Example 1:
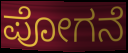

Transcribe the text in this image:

ಪೋಗನೆ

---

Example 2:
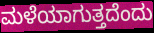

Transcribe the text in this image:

ಮಳೆಯಾಗುತ್ತದೆಂದು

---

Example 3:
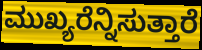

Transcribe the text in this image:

ಮುಖ್ಯರೆನ್ನಿಸುತ್ತಾರೆ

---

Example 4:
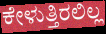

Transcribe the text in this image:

ಕೇಳುತ್ತಿರಲಿಲ್ಲ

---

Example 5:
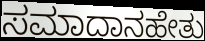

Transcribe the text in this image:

ಸಮಾದಾನಹೇತು